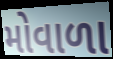
મોવાળા